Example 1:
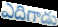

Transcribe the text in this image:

ఎదిగాడు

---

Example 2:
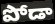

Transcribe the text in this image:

పోడా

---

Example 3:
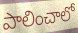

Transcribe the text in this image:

పాలించాలో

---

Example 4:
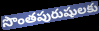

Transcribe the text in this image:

సొంతపురుషులకు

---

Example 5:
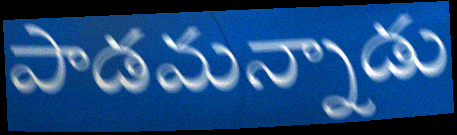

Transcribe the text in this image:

పాడమన్నాడు